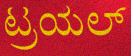
ಟ್ರಯಲ್